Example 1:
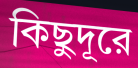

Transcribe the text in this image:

কিছুদূরে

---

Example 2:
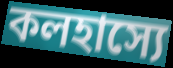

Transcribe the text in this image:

কলহাস্যে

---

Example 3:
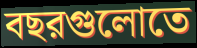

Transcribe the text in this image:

বছরগুলোতে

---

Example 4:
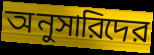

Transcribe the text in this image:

অনুসারিদের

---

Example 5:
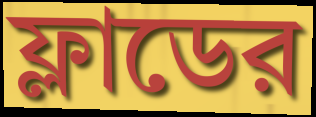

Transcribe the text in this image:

ফ্লাডের